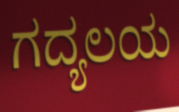
ಗದ್ಯಲಯ